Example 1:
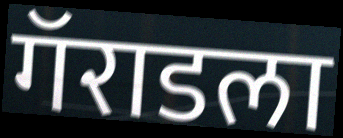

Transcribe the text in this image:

गॅराडला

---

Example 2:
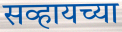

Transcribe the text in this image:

सव्हायच्या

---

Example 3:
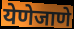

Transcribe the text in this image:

येणेजाणे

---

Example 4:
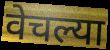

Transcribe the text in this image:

वेचल्या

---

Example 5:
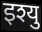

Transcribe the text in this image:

इश्यु